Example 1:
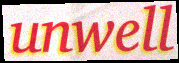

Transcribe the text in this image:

unwell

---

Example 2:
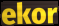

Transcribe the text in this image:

ekor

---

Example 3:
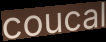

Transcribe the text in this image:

coucal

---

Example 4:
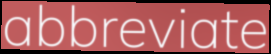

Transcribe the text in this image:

abbreviate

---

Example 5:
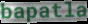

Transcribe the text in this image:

bapatla